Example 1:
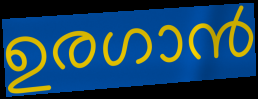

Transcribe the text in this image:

ഉരഗാൻ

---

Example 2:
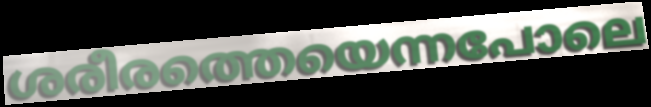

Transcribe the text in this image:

ശരീരത്തെയെന്നപോലെ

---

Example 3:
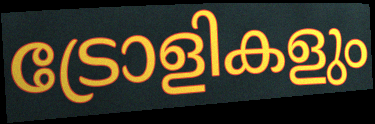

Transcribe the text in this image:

ട്രോളികളും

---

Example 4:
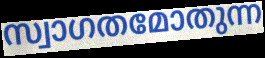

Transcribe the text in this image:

സ്വാഗതമോതുന്ന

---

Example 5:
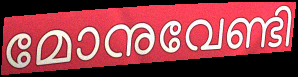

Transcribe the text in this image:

മോനുവേണ്ടി